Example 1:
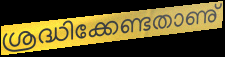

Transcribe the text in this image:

ശ്രദ്ധിക്കേണ്ടതാണു്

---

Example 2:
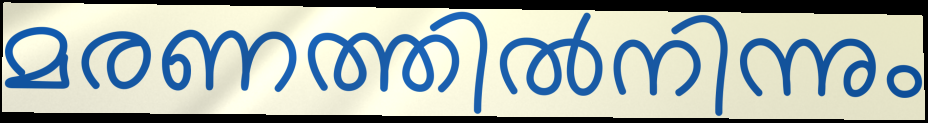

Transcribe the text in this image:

മരണത്തിൽനിന്നും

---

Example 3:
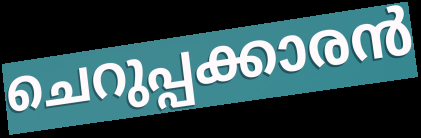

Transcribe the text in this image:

ചെറുപ്പക്കാരൻ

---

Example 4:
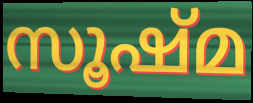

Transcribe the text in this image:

സൂഷ്മ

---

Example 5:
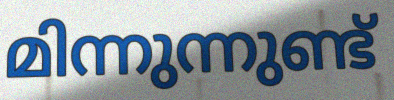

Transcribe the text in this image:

മിന്നുന്നുണ്ട്